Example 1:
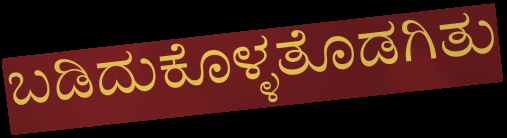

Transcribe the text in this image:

ಬಡಿದುಕೊಳ್ಳತೊಡಗಿತು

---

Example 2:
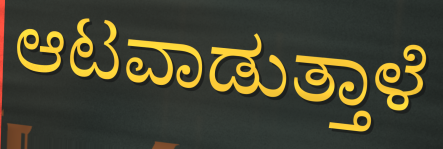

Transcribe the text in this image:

ಆಟವಾಡುತ್ತಾಳೆ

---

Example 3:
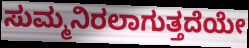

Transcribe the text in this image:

ಸುಮ್ಮನಿರಲಾಗುತ್ತದೆಯೇ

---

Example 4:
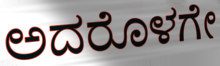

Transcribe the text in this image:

ಅದರೊಳಗೇ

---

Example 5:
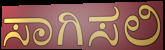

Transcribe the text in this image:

ಸಾಗಿಸಲಿ